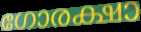
ഗോരക്ഷാ